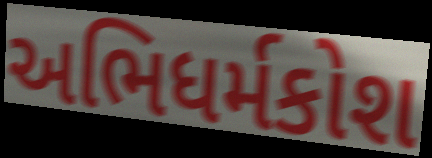
અભિધર્મકોશ